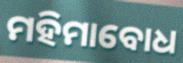
ମହିମାବୋଧ